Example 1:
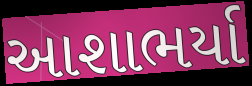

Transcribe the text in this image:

આશાભર્યા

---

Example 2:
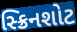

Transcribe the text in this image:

સ્ક્રિનશોટ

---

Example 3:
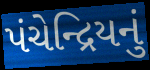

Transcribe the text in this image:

પંચેન્દ્રિયનું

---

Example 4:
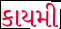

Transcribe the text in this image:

કાયમી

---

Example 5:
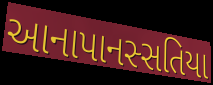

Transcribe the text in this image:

આનાપાનસ્સતિયા